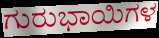
ಗುರುಭಾಯಿಗಳ